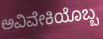
ಅವಿವೇಕಿಯೊಬ್ಬ